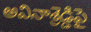
అవినాశ్రెడ్డిపై